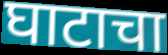
घाटाचा